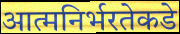
आत्मनिर्भरतेकडे